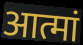
आत्मां